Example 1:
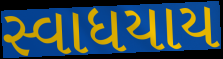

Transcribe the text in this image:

સ્વાધયાય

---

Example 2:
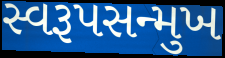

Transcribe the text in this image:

સ્વરૂપસન્મુખ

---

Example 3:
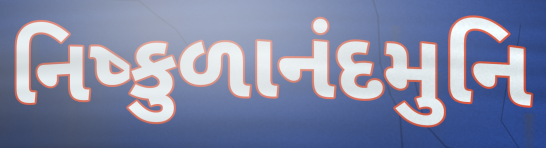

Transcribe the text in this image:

નિષ્કુળાનંદમુનિ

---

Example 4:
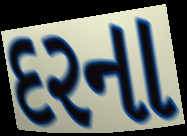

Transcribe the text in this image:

દરના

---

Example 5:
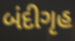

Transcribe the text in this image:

બંદીગૃહ